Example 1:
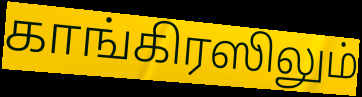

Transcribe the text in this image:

காங்கிரஸிலும்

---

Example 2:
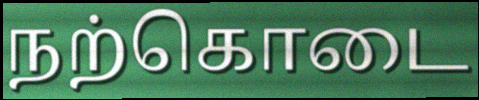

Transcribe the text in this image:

நற்கொடை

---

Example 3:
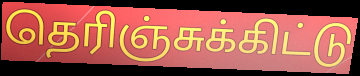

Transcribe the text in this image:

தெரிஞ்சுக்கிட்டு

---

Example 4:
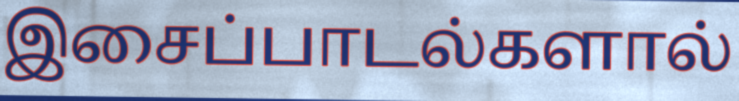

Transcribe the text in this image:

இசைப்பாடல்களால்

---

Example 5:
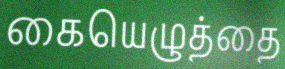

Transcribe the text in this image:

கையெழுத்தை